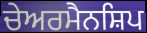
ਚੇਅਰਮੈਨਸ਼ਿਪ